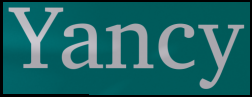
Yancy